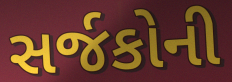
સર્જકોની